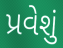
પ્રવેશું